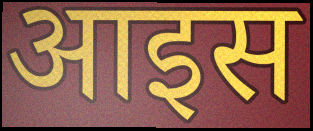
आइस